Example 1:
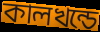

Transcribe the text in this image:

কালখন্ডে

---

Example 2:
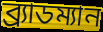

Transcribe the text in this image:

ব্র্যাডম্যান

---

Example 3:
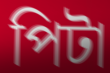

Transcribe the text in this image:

পিটা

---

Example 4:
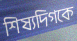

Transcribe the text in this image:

শিষ্যদিগকে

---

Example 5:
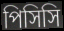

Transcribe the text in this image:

পিসিসি